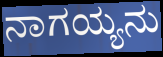
ನಾಗಯ್ಯನು